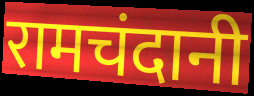
रामचंदानी